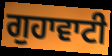
ਗੁਹਾਵਾਟੀ